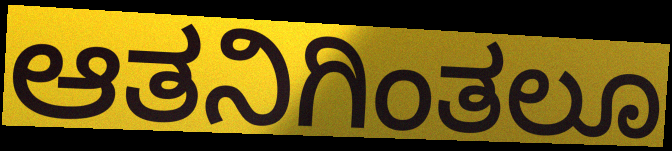
ಆತನಿಗಿಂತಲೂ